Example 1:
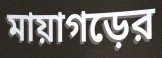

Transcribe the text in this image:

মায়াগড়ের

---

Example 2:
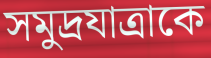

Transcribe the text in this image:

সমুদ্রযাত্রাকে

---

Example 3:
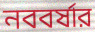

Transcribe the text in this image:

নববর্ষার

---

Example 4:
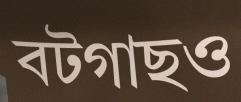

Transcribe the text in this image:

বটগাছও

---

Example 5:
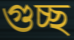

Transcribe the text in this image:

গুচ্ছ